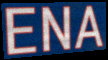
ENA